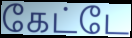
கேட்டே